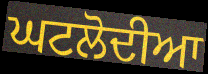
ਘਟਲੋਦੀਆ